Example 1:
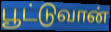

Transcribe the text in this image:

பூட்டுவான்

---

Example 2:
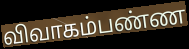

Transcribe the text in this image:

விவாகம்பண்ண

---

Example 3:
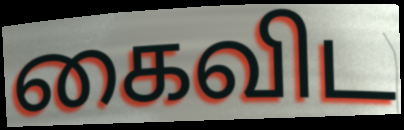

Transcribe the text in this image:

கைவிட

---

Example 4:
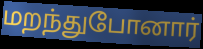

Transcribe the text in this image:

மறந்துபோனார்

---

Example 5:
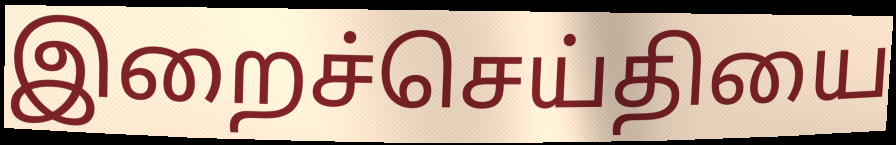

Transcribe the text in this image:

இறைச்செய்தியை